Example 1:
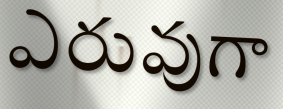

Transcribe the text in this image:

ఎరువుగా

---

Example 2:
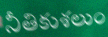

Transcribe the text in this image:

నీతికుశలుం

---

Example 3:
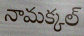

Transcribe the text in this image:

నామక్కల్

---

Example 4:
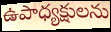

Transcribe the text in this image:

ఉపాధ్యక్షులను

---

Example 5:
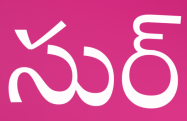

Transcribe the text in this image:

సుర్